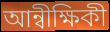
আন্বীক্ষিকী